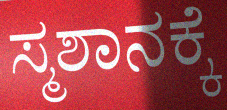
ಸ್ಮಶಾನಕ್ಕೆ